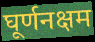
घूर्णनक्षम